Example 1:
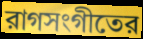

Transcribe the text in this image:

রাগসংগীতের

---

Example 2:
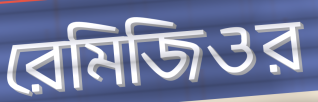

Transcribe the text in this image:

রেমিজিওর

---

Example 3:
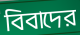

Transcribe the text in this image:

বিবাদের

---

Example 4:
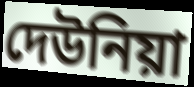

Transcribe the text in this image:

দেউনিয়া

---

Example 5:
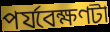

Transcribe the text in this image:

পর্যবেক্ষণটা